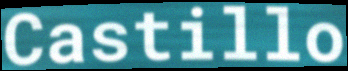
Castillo